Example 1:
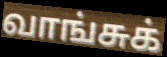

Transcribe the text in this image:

வாங்சுக்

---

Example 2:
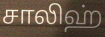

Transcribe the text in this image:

சாலிஹ்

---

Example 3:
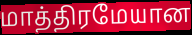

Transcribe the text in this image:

மாத்திரமேயான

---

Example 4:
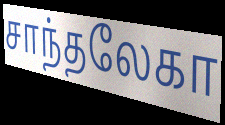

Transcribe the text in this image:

சாந்தலேகா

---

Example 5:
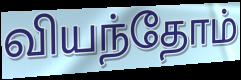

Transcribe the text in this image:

வியந்தோம்